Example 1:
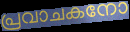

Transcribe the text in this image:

പ്രവാചകനോ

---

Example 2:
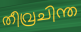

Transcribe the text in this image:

തീവ്രചിന്ത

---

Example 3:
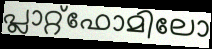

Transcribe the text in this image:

പ്ലാറ്റ്ഫോമിലോ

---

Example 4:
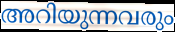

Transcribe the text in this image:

അറിയുന്നവരും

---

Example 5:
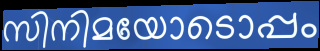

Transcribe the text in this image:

സിനിമയോടൊപ്പം